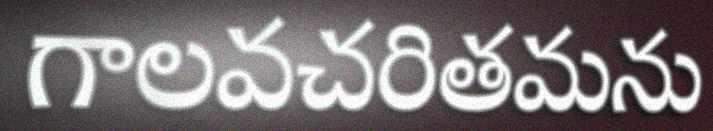
గాలవచరితమను